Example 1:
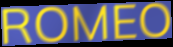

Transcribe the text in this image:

ROMEO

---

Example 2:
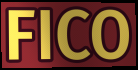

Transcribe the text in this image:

FICO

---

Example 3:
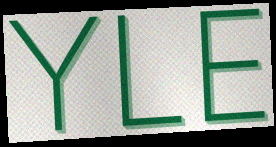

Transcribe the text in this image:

YLE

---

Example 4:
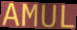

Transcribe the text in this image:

AMUL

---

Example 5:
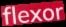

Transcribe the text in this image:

flexor